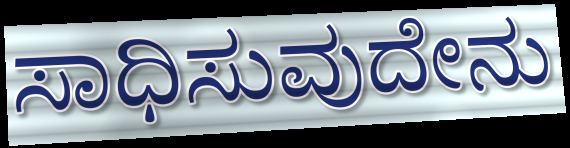
ಸಾಧಿಸುವುದೇನು